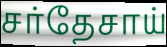
சர்தேசாய்